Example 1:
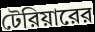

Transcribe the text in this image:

টেরিয়ারের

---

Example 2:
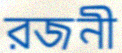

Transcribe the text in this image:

রজনী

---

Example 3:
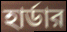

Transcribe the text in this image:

হার্ডার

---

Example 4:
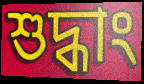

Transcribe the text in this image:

শুদ্ধাং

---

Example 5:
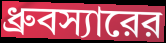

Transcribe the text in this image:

ধ্রুবস্যারের